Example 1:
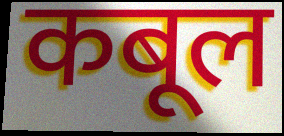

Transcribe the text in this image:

कबूल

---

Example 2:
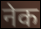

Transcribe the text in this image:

नेक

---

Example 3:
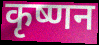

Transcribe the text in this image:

कृष्णन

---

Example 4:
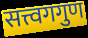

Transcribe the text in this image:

सत्त्वगगुण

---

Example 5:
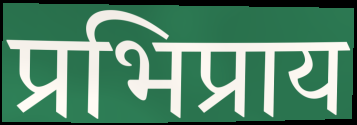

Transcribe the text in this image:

प्रभिप्राय